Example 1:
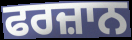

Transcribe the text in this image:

ਫਰਜ਼ਾਨ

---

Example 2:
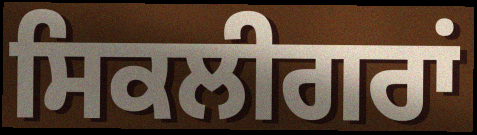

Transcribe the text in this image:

ਸਿਕਲੀਗਰਾਂ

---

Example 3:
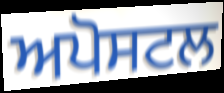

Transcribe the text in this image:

ਅਪੋਸਟਲ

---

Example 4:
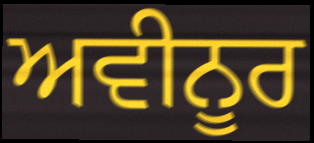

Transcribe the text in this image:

ਅਵੀਨੂਰ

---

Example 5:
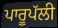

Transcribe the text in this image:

ਪਾਰੂਪੱਲੀ